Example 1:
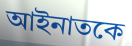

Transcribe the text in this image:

আইনাতকে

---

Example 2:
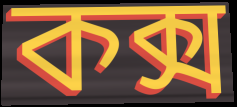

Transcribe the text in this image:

কক্স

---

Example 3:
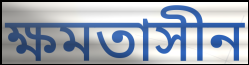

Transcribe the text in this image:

ক্ষমতাসীন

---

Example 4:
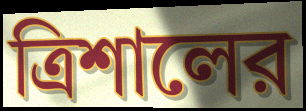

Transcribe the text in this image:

ত্রিশালের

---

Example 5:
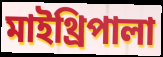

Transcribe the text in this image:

মাইথ্রিপালা